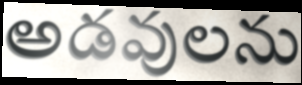
అడవులను